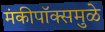
मंकीपॉक्समुळे